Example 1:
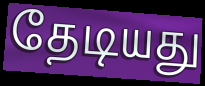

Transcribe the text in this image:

தேடியது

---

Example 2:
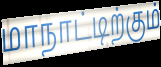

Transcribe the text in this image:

மாநாட்டிற்கும்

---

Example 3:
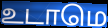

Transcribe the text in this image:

உடாமெ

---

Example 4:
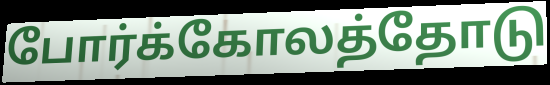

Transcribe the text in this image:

போர்க்கோலத்தோடு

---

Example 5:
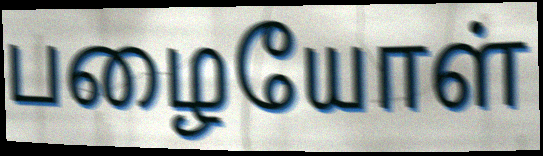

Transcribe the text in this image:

பழையோள்